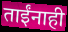
ताईंनाही